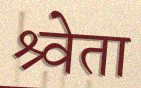
श्र्वेता